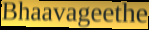
Bhaavageethe